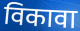
विकावा